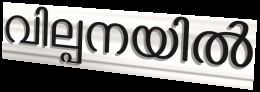
വില്പനയിൽ